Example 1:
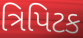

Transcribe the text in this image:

ત્રિપિટક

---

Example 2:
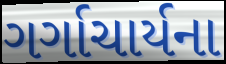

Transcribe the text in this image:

ગર્ગાચાર્યના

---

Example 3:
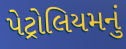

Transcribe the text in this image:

પેટ્રોલિયમનું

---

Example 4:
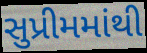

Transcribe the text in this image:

સુપ્રીમમાંથી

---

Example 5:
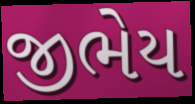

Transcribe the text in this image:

જીભેય